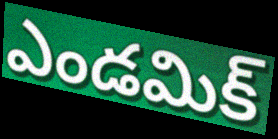
ఎండమిక్